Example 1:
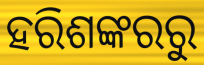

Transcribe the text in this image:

ହରିଶଙ୍କରରୁ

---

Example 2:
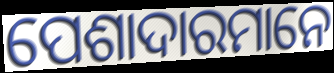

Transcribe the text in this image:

ପେଶାଦାରମାନେ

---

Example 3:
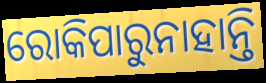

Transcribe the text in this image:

ରୋକିପାରୁନାହାନ୍ତି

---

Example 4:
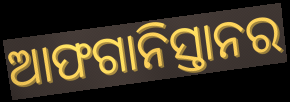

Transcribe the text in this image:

ଆଫଗାନିସ୍ତାନର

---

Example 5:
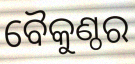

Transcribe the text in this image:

ବୈକୁଣ୍ଠର